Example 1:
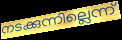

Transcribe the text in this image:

നടക്കുന്നില്ലെന്ന്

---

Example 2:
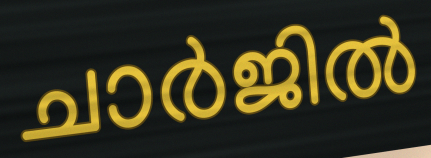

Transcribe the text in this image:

ചാർജിൽ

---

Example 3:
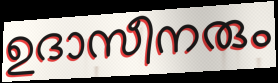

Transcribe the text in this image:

ഉദാസീനരും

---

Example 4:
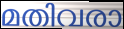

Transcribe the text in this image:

മതിവരാ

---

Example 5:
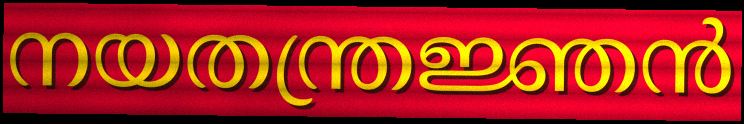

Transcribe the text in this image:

നയതന്ത്രജ്ഞൻ